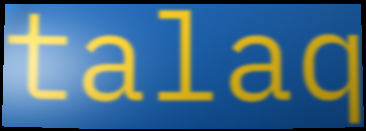
talaq